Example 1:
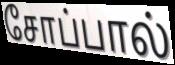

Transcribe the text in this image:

சோப்பால்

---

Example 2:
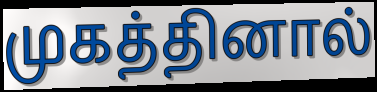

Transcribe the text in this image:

முகத்தினால்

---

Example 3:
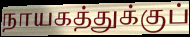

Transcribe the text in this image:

நாயகத்துக்குப்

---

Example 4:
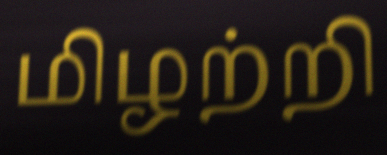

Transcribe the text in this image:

மிழற்றி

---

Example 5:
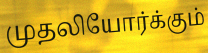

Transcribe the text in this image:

முதலியோர்க்கும்